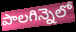
పాలగిన్నెలో